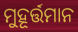
ମୁହୂର୍ତ୍ତମାନ